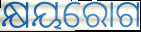
କ୍ଷୟରୋଗ